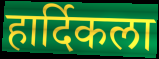
हार्दिकला